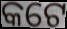
କଟେ